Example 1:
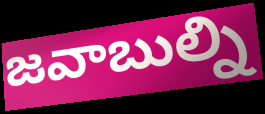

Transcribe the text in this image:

జవాబుల్ని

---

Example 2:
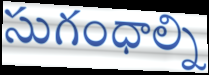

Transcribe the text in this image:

సుగంధాల్ని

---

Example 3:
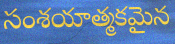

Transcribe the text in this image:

సంశయాత్మకమైన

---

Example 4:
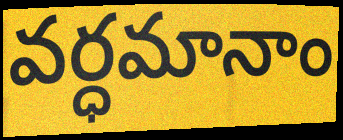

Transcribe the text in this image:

వర్ధమానాం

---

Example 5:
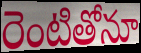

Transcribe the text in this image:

రెంటితోనూ